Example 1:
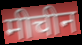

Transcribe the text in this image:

मीचीन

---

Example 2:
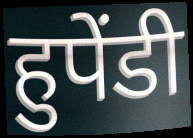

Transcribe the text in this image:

हुपेंडी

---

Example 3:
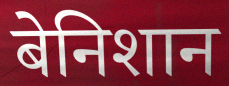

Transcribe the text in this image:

बेनिशान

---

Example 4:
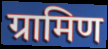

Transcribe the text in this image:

ग्रामिण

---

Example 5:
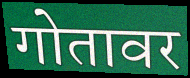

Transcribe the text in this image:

गोतावर